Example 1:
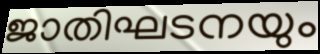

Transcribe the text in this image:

ജാതിഘടനയും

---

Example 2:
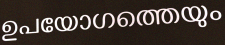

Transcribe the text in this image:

ഉപയോഗത്തെയും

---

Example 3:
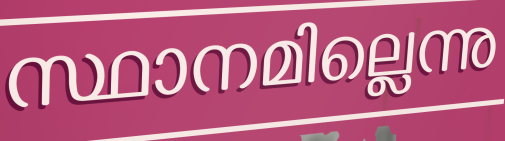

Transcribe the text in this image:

സ്ഥാനമില്ലെന്നു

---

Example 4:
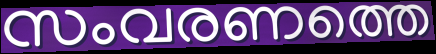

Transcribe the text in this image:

സംവരണത്തെ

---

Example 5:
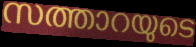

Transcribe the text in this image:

സത്താറയുടെ